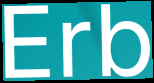
Erb